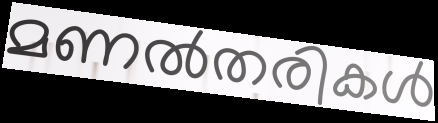
മണൽതരികൾ